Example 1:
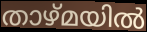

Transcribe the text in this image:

താഴ്മയിൽ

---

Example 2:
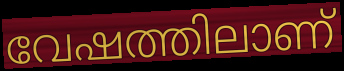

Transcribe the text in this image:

വേഷത്തിലാണ്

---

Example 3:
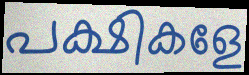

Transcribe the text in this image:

പക്ഷികളേ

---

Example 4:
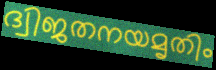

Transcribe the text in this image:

ദ്വിജതനയമൃതിം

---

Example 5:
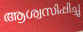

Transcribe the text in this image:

ആശ്വസിപ്പിച്ചു